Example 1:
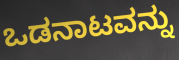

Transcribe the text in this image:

ಒಡನಾಟವನ್ನು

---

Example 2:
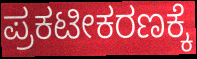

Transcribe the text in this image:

ಪ್ರಕಟೀಕರಣಕ್ಕೆ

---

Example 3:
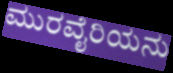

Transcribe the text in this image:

ಮುರವೈರಿಯನು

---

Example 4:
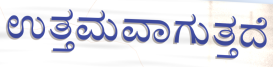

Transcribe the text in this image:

ಉತ್ತಮವಾಗುತ್ತದೆ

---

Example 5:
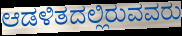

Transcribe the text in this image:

ಆಡಳಿತದಲ್ಲಿರುವವರು